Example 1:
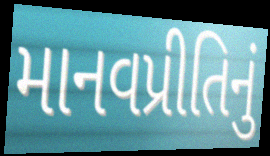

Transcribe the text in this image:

માનવપ્રીતિનું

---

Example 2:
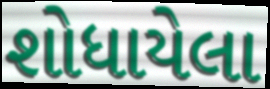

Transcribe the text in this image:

શોધાયેલા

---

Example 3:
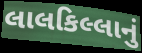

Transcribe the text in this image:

લાલકિલ્લાનું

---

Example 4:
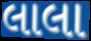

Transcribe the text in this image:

લાલા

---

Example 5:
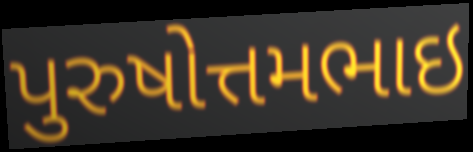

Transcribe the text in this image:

પુરુષોત્તમભાઇ